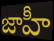
జాహీ